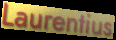
Laurentius